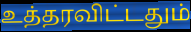
உத்தரவிட்டதும்